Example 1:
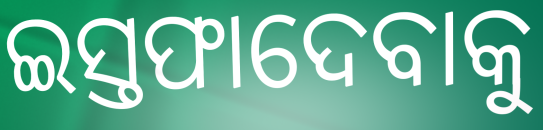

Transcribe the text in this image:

ଇସ୍ତଫାଦେବାକୁ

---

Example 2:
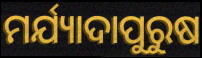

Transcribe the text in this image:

ମର୍ଯ୍ୟାଦାପୁରୁଷ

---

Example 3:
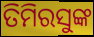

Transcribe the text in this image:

ତିମିରସୁଙ୍କ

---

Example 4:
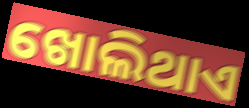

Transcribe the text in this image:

ଖୋଲିଥାଏ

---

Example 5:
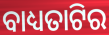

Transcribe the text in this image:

ବାଧ୍ୟତାଟିର